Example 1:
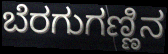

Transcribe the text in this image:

ಬೆರಗುಗಣ್ಣಿನ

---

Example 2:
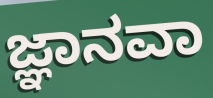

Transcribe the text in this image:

ಜ್ಞಾನವಾ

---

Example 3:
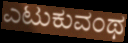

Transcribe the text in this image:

ಎಟುಕುವಂಥ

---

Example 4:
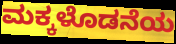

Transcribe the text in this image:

ಮಕ್ಕಳೊಡನೆಯ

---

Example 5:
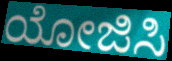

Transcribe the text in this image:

ಯೋಜಿಸಿ